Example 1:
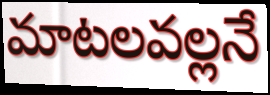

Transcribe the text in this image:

మాటలవల్లనే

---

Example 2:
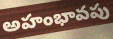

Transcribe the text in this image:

అహంభావపు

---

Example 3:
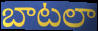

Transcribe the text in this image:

బాటలా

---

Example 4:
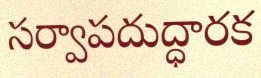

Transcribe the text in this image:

సర్వాపదుద్ధారక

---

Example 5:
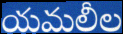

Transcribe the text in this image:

యమలీల